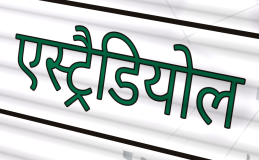
एस्ट्रैडियोल